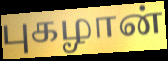
புகழான்